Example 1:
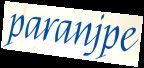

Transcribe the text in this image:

paranjpe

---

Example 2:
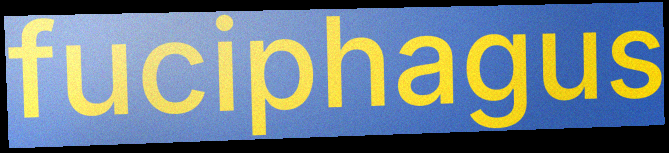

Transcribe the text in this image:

fuciphagus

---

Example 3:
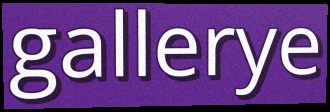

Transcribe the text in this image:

gallerye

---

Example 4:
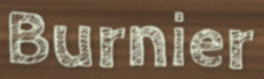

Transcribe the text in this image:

Burnier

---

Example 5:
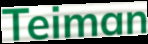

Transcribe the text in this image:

Teiman